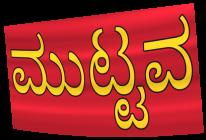
ಮುಟ್ಟವ